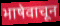
भाषेवाचून